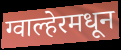
ग्वाल्हेरमधून